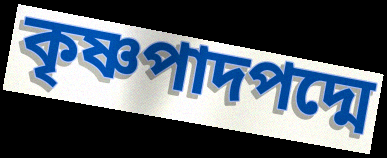
কৃষ্ণপাদপদ্মে